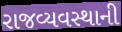
રાજવ્યવસ્થાની